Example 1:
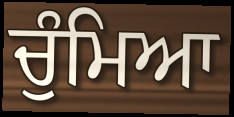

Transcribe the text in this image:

ਚੁੰਮਿਆ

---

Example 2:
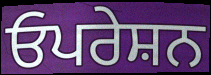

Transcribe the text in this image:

ਓਪਰੇਸ਼ਨ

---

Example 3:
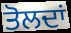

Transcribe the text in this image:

ਤੋਲਦਾਂ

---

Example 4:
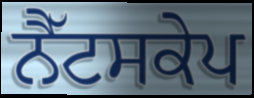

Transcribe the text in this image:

ਨੈੱਟਸਕੇਪ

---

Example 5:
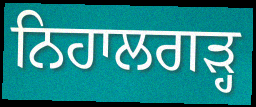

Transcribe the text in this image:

ਨਿਹਾਲਗੜ੍ਹ